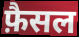
फ़ैसल